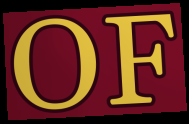
OF